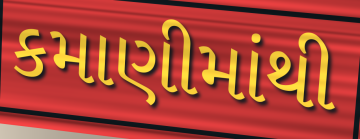
કમાણીમાંથી